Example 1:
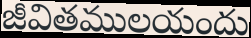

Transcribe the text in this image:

జీవితములయందు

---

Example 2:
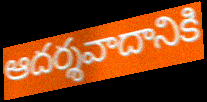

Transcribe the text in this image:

ఆదర్శవాదానికి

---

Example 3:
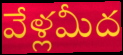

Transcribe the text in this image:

వేళ్లమీద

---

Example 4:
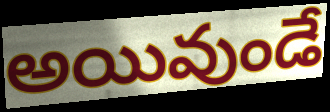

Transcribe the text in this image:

అయివుండే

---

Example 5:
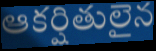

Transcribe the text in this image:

ఆకర్షితులైన